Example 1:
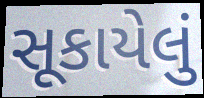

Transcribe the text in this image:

સૂકાયેલું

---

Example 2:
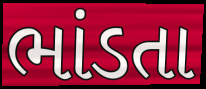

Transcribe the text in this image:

ભાંડતા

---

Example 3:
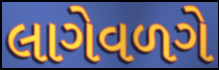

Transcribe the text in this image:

લાગેવળગે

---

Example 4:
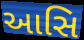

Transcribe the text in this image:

આસિ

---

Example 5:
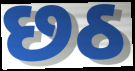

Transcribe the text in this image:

છઠ